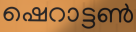
ഷെറാട്ടൺ